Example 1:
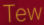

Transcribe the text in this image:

Tew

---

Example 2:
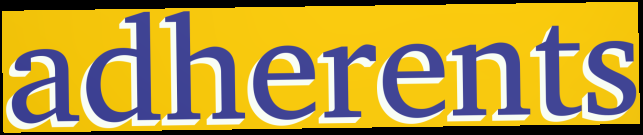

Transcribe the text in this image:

adherents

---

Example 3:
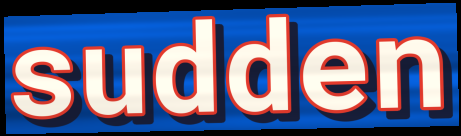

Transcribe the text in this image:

sudden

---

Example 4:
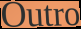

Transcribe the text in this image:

Outro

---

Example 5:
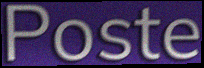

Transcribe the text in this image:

Poste